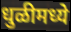
धुळीमध्ये